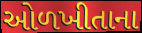
ઓળખીતાના